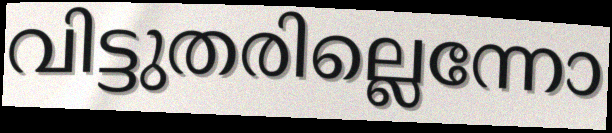
വിട്ടുതരില്ലെന്നോ